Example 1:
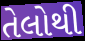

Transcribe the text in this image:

તેલોથી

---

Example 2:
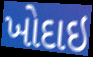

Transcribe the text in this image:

ખોદાઇ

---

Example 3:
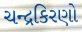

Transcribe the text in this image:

ચન્દ્રકિરણો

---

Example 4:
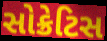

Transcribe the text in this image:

સોક્રેટિસ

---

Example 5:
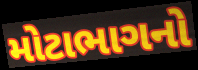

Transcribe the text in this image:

મોટાભાગનો